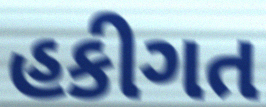
હકીગત